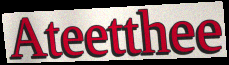
Ateetthee